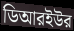
ডিআরইউর